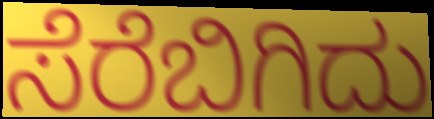
ಸೆರೆಬಿಗಿದು